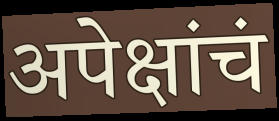
अपेक्षांचं